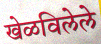
खेळविलेले